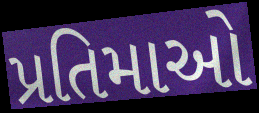
પ્રતિમાઓ